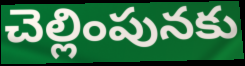
చెల్లింపునకు